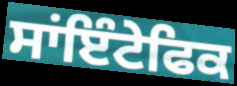
ਸਾਂਇੰਟੇਫਿਕ